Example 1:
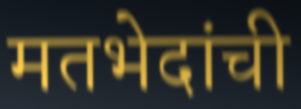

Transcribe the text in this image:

मतभेदांची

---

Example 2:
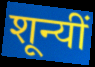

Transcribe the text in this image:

शून्यीं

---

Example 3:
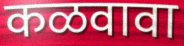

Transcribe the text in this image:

कळवावा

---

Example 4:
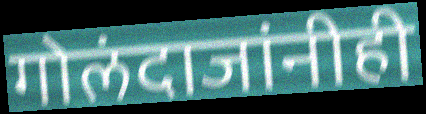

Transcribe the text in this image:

गोलंदाजांनीही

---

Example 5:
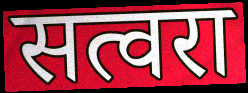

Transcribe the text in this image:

सत्वरा